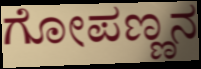
ಗೋಪಣ್ಣನ